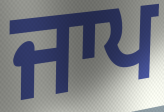
ਜਾਪ